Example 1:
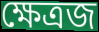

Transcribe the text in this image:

ক্ষেত্রজ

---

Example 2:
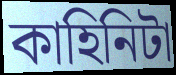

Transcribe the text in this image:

কাহিনিটা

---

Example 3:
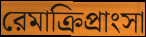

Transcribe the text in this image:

রেমাক্রিপ্রাংসা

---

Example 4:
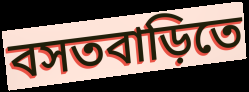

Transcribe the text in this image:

বসতবাড়িতে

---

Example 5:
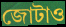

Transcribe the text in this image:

জোটাও